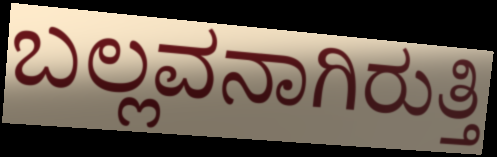
ಬಲ್ಲವನಾಗಿರುತ್ತಿ